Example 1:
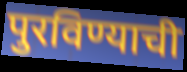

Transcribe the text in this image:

पुरविण्याची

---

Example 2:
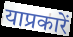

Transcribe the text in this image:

याप्रकारें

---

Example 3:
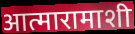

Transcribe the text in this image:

आत्मारामाशी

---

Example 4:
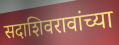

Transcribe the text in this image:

सदाशिवरावांच्या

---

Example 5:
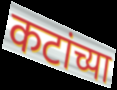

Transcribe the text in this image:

कटांच्या